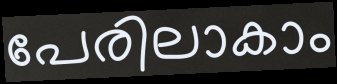
പേരിലാകാം